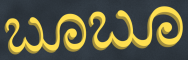
ಬೂಬೂ